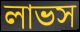
লাভস